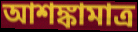
আশঙ্কামাত্র